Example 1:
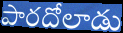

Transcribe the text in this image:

పారదోలాడు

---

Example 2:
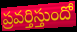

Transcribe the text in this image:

ప్రవర్తిస్తుందో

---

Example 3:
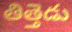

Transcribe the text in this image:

తిత్తెడు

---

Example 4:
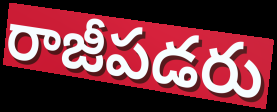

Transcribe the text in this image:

రాజీపడరు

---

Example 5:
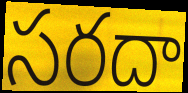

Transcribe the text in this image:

సరదా